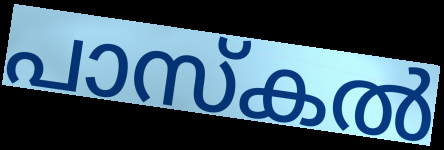
പാസ്കൽ